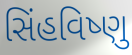
સિંહવિષ્ણુ